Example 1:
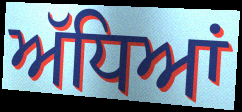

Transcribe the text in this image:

ਅੱਧਿਆਂ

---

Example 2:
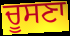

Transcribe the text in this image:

ਚੂਸਣਾ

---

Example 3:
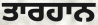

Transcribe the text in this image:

ਤਾਰਹਾਨ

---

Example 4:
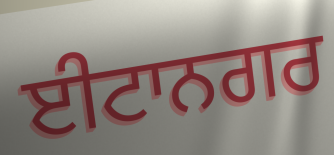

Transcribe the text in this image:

ਈਟਾਨਗਰ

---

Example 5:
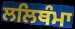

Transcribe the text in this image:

ਲਲਿਥੰਮਾ